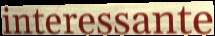
interessante